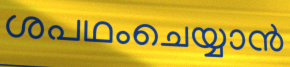
ശപഥംചെയ്യാൻ